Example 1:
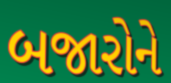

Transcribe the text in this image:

બજારોને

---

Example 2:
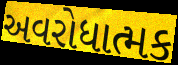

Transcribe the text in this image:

અવરોધાત્મક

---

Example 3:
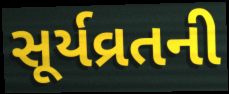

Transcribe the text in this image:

સૂર્યવ્રતની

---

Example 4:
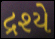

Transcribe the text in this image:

દ્રશ્યે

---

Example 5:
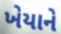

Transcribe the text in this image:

ખેયાને